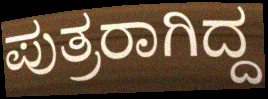
ಪುತ್ರರಾಗಿದ್ದ